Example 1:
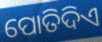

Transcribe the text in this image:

ପୋତିଦିଏ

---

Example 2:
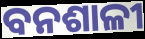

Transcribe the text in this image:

ବନଶାଳୀ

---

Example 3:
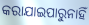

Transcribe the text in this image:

କରାଯାଇପାରୁନାହିଁ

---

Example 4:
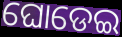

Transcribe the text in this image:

ଘୋଡେଇ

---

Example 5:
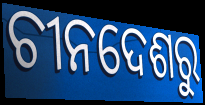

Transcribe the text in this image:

ଚୀନଦେଶରୁ